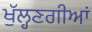
ਖੁੱਲ੍ਹਣਗੀਆਂ